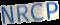
NRCP